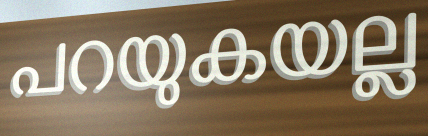
പറയുകയല്ല